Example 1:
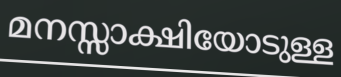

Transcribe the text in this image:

മനസ്സാക്ഷിയോടുള്ള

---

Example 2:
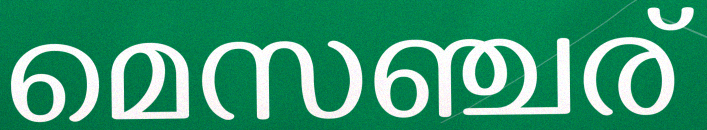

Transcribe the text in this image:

മെസഞ്ചര്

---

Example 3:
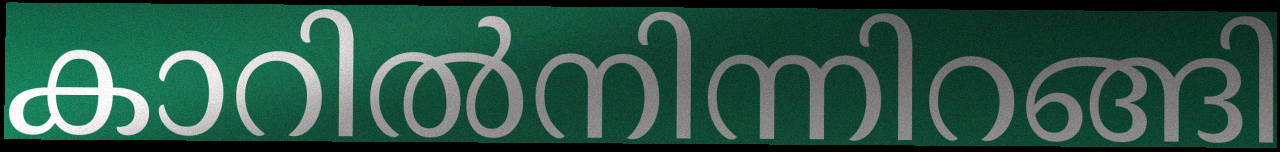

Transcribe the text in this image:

കാറിൽനിന്നിറങ്ങി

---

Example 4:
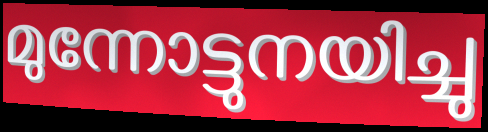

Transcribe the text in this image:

മുന്നോട്ടുനയിച്ചു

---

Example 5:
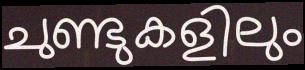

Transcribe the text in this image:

ചുണ്ടുകളിലും